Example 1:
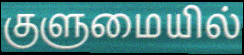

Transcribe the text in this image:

குளுமையில்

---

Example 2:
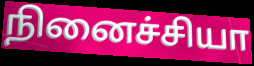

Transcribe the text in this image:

நினைச்சியா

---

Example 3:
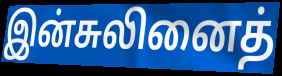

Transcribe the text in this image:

இன்சுலினைத்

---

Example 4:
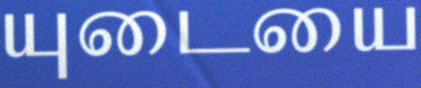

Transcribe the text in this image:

யுடையை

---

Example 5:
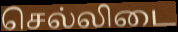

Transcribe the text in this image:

செல்லிடை